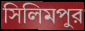
সিলিমপুর